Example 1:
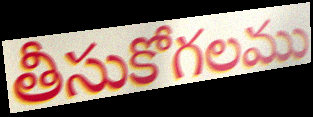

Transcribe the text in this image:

తీసుకోగలము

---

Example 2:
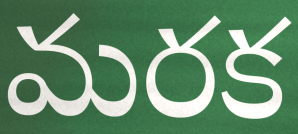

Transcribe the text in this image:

మరక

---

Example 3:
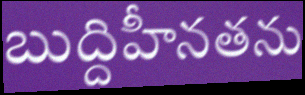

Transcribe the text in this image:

బుద్దిహీనతను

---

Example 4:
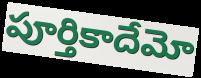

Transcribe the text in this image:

పూర్తికాదేమో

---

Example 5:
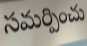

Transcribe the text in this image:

సమర్పించు